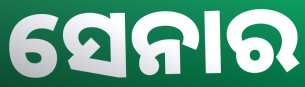
ସେନାର